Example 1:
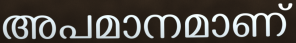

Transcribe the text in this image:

അപമാനമാണ്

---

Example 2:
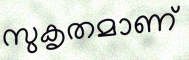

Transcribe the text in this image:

സുകൃതമാണ്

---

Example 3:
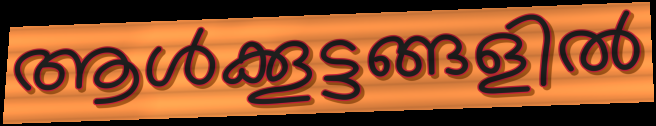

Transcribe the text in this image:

ആൾക്കൂട്ടങ്ങളിൽ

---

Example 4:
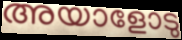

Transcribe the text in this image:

അയാളോടു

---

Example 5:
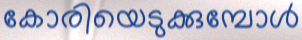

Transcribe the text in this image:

കോരിയെടുക്കുമ്പോൾ